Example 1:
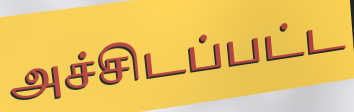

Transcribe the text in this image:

அச்சிடப்பட்ட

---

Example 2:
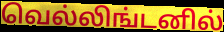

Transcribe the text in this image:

வெல்லிங்டனில்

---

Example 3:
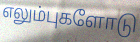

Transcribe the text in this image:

எலும்புகளோடு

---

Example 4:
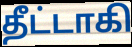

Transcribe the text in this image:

தீட்டாகி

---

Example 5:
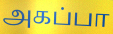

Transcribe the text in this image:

அகப்பா